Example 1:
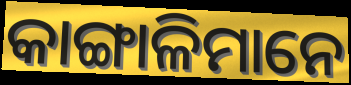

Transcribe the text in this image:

କାଙ୍ଗାଳିମାନେ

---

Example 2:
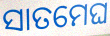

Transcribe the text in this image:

ସାତମେଘ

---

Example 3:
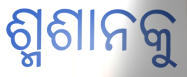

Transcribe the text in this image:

ଶ୍ମଶାନକୁ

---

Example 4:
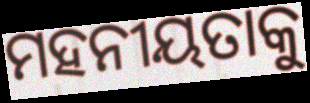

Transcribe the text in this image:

ମହନୀୟତାକୁ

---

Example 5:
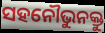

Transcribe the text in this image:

ସହନୌଭୁନକ୍ତୁ